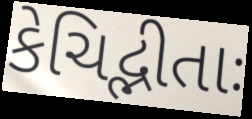
કેચિદ્ભીતાઃ